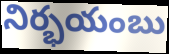
నిర్భయంబు